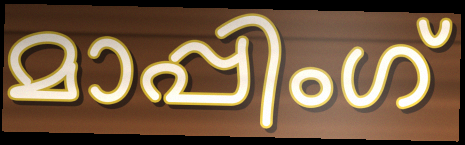
മാപ്പിംഗ്